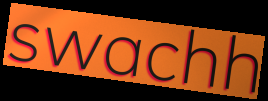
swachh